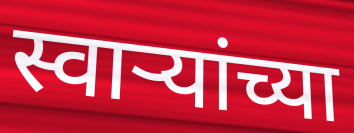
स्वाऱ्यांच्या